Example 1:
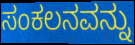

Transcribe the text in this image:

ಸಂಕಲನವನ್ನು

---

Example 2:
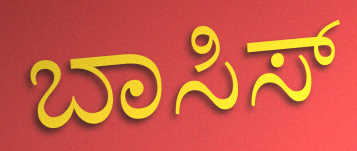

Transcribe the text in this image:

ಬಾಸಿಸ್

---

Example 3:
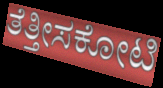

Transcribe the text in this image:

ತೆತ್ತೀಸಕೋಟಿ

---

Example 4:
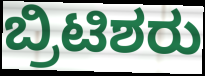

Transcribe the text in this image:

ಬ್ರಿಟಿಶರು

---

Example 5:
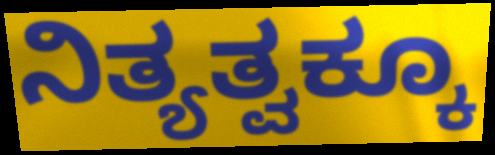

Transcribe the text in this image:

ನಿತ್ಯತ್ವಕ್ಕೂ